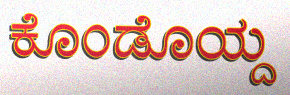
ಕೊಂಡೊಯ್ದ